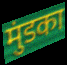
मुंडका